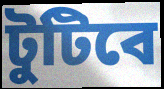
টুটিবে